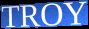
TROY